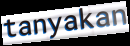
tanyakan